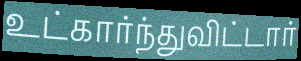
உட்கார்ந்துவிட்டார்